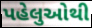
પહેલુઓથી